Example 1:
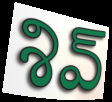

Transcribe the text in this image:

శివ్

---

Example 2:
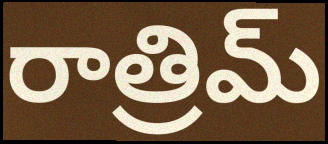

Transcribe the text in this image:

రాత్రిమ్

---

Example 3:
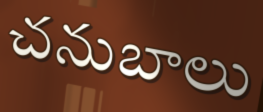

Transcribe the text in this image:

చనుబాలు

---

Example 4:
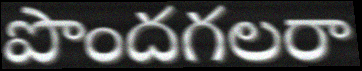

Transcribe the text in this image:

పొందగలరా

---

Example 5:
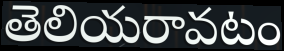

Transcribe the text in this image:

తెలియరావటం